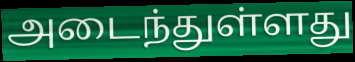
அடைந்துள்ளது